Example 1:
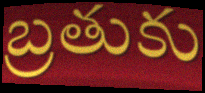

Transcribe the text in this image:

బ్రతుకు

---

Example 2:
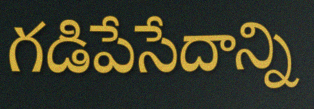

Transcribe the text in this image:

గడిపేసేదాన్ని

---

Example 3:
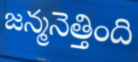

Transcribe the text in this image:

జన్మనెత్తింది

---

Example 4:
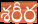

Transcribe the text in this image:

శరీర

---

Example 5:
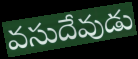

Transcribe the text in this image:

వసుదేవుడు